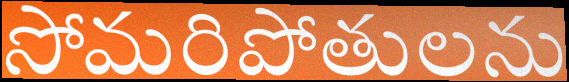
సోమరిపోతులను